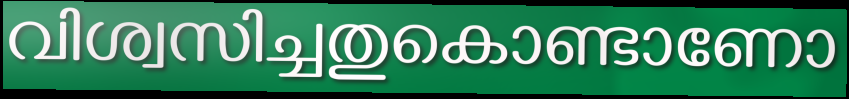
വിശ്വസിച്ചതുകൊണ്ടാണോ